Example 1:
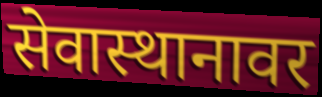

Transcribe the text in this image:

सेवास्थानावर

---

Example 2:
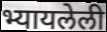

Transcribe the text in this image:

भ्यायलेली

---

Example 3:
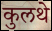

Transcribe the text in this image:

कुलथे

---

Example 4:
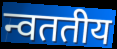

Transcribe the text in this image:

न्वततीय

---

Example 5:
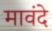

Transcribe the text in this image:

मावंदे